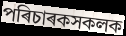
পৰিচাৰকসকলক